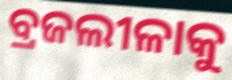
ବ୍ରଜଲୀଳାକୁ